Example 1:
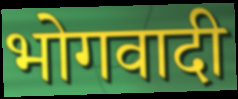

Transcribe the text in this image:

भोगवादी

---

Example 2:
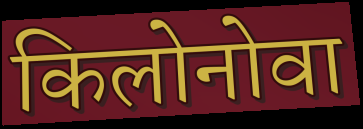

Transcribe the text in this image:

किलोनोवा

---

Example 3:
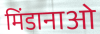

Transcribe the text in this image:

मिंडानाओ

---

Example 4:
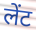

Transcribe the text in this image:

लेंट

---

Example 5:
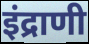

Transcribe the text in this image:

इंद्राणी